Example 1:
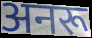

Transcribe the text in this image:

अनरू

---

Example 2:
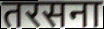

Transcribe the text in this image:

तरसना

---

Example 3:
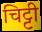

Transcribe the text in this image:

चिट्टी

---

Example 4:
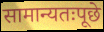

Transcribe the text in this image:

सामान्यतःपूछे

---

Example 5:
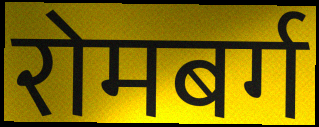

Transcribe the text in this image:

रोमबर्ग